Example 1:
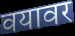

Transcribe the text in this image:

वयावर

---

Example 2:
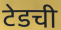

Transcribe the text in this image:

टेडची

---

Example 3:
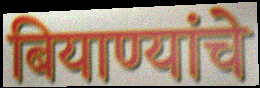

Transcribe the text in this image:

बियाण्यांचे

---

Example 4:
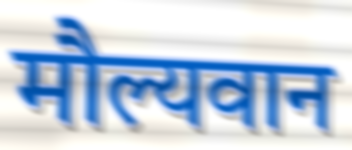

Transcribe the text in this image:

मौल्यवान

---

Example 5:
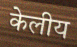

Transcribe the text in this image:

केलीय